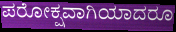
ಪರೋಕ್ಷವಾಗಿಯಾದರೂ